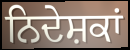
ਨਿਦੇਸ਼ਕਾਂ